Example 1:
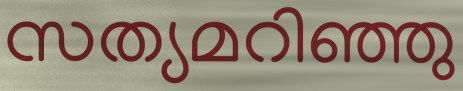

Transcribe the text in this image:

സത്യമറിഞ്ഞു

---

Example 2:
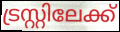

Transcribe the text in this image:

ട്രസ്റ്റിലേക്ക്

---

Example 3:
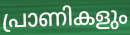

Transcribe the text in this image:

പ്രാണികളും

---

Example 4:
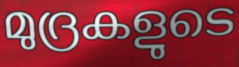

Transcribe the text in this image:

മുദ്രകളുടെ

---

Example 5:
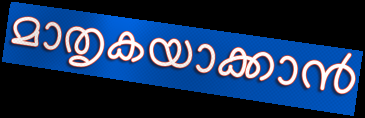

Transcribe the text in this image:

മാതൃകയാക്കാൻ